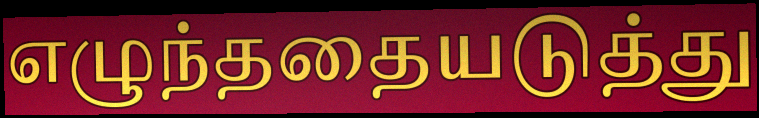
எழுந்ததையடுத்து